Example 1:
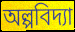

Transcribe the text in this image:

অল্পবিদ্যা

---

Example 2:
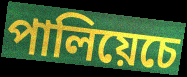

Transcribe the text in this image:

পালিয়েচে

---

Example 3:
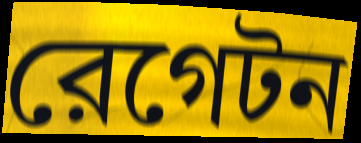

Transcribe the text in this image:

রেগেটন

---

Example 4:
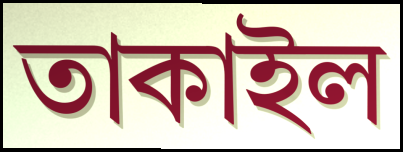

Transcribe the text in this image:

তাকাইল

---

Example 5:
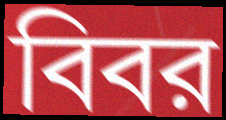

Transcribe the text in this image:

বিবর